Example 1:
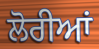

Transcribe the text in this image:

ਲੋਰੀਆਂ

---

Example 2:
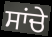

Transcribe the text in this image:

ਸਾਂਚੇ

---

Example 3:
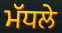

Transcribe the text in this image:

ਮੱਧਲੇ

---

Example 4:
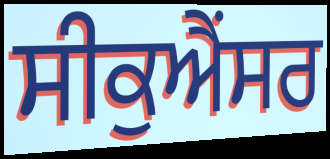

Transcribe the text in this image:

ਸੀਕੁਐਂਸਰ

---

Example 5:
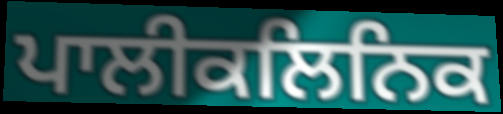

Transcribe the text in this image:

ਪਾਲੀਕਲਿਨਿਕ